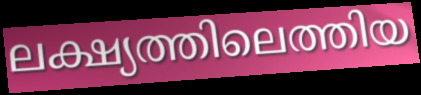
ലക്ഷ്യത്തിലെത്തിയ